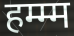
हम्म्म